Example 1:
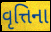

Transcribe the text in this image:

વૃત્તિના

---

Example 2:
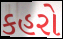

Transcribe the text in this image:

કહરો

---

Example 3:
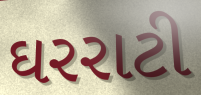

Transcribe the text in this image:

ઘરરાટી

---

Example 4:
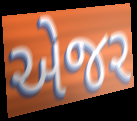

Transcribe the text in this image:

એજર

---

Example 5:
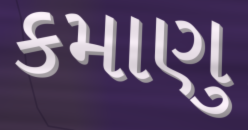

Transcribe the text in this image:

કમાણુ